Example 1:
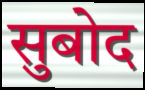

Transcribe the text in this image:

सुबोद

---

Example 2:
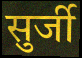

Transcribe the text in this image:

सुर्जी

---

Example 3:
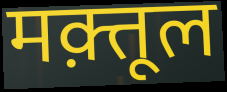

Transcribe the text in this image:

मक़्तूल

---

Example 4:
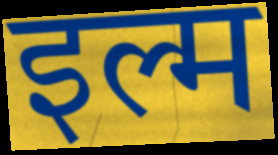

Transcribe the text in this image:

इल्म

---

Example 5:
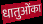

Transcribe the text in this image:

धातुओंका